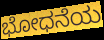
ಭೋಧನೆಯ